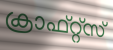
ക്രാഫ്റ്റ്സ്